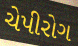
ચેપીરોગ